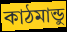
কাঠমান্ডু